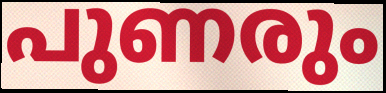
പുണരും